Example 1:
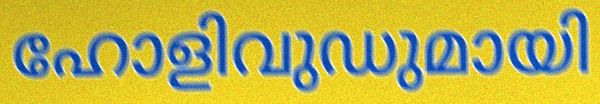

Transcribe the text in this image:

ഹോളിവുഡുമായി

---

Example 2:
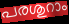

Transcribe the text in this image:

പരശുറാം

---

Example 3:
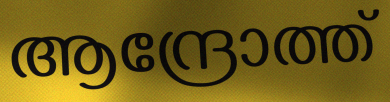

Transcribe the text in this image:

ആന്ദ്രോത്ത്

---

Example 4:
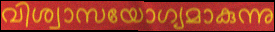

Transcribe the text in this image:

വിശ്വാസയോഗ്യമാകുന്നു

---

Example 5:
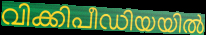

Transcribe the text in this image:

വിക്കിപീഡിയയിൽ